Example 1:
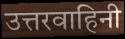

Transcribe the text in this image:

उत्तरवाहिनी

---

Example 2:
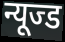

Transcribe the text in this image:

न्यूज्ड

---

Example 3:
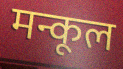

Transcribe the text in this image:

मन्कूल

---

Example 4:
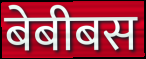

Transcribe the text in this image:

बेबीबस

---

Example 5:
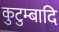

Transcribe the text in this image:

कुटुम्बादि